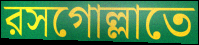
রসগোল্লাতে